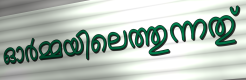
ഓർമ്മയിലെത്തുന്നതു്